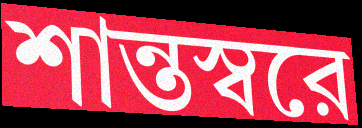
শান্তস্বরে